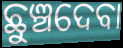
ଛୁଞ୍ଚଦେବା